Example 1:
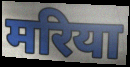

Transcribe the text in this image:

मरिया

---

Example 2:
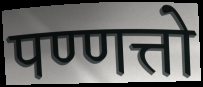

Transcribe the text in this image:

पण्णत्तो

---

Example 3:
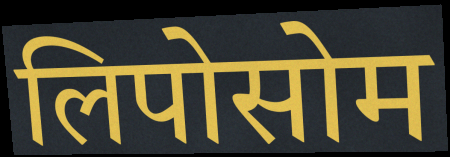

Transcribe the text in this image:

लिपोसोम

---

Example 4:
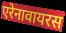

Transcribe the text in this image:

एरेनावायरस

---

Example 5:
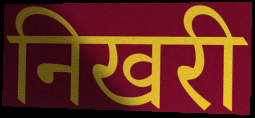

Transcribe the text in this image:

निखरी